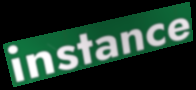
instance